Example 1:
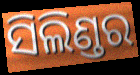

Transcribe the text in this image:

ସିଲିଣ୍ଡର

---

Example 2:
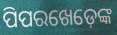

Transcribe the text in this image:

ପିପରଖେଡ଼େଙ୍କ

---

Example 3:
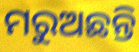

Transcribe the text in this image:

ମରୁଅଛନ୍ତି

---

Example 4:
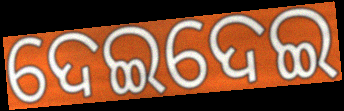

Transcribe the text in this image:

ଦେଇଦେଇ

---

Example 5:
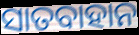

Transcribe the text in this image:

ସାତବାହାନ